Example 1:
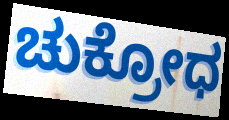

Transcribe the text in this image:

ಚುಕ್ರೋಧ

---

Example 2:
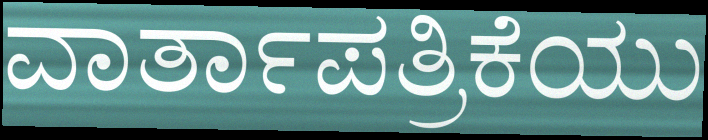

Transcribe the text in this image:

ವಾರ್ತಾಪತ್ರಿಕೆಯು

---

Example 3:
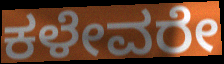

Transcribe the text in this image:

ಕಳೇವರೇ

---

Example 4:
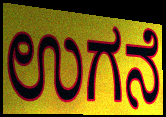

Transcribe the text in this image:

ಉಗನೆ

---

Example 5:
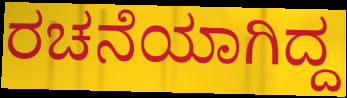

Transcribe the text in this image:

ರಚನೆಯಾಗಿದ್ದ